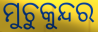
ମୁଚୁକୁନ୍ଦର